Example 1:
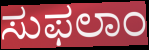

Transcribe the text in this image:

ಸುಫಲಾಂ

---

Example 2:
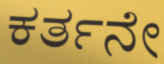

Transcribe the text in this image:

ಕರ್ತನೇ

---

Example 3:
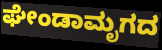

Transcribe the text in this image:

ಘೇಂಡಾಮೃಗದ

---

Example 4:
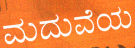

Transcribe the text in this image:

ಮದುವೆಯ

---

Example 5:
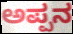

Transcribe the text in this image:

ಅಪ್ಪನ